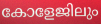
കോളേജിലും